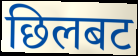
छिलबट